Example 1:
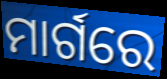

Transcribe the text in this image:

ମାର୍ଗରେ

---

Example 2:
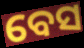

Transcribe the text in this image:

ବେସ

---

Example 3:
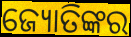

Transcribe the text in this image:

ଜ୍ୟୋତିଙ୍କର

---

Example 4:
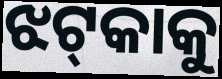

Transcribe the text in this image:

ଝଟ୍‌କାକୁ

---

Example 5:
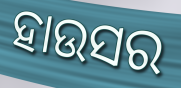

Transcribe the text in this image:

ହାଉସର